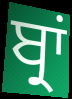
ਬ੍ਰਾਂ